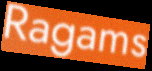
Ragams